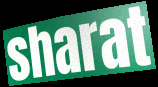
sharat